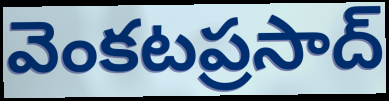
వెంకటప్రసాద్